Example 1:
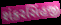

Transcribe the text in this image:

શંકરસિંહજી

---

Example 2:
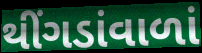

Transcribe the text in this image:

થીંગડાંવાળાં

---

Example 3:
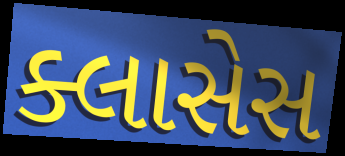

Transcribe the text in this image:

ક્લાસેસ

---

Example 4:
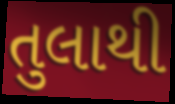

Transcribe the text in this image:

તુલાથી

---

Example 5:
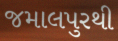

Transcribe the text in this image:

જમાલપુરથી